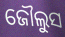
ଜୌଲୁସ